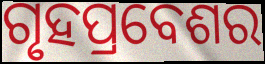
ଗୃହପ୍ରବେଶର